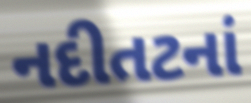
નદીતટનાં